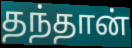
தந்தான்